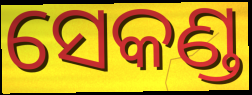
ସେକଣ୍ଡ